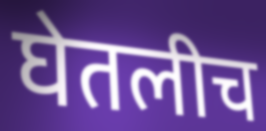
घेतलीच